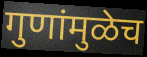
गुणांमुळेच